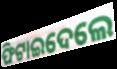
ଫିଟାଇଦେଲେ